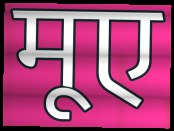
मूए